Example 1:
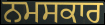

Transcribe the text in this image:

ਨਮਸਕਾਰ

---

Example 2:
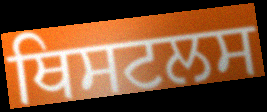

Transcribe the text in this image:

ਥਿਸਟਲਸ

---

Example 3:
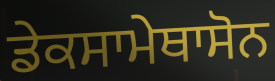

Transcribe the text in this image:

ਡੇਕਸਾਮੇਥਾਸੋਨ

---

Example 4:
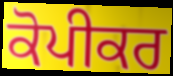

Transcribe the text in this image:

ਕੋਪੀਕਰ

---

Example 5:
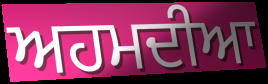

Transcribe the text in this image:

ਅਹਮਦੀਆ